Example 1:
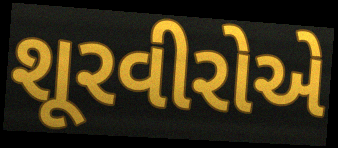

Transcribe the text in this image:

શૂરવીરોએ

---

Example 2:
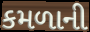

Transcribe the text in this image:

કમળાની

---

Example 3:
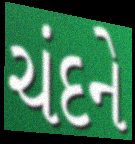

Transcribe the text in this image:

ચંદને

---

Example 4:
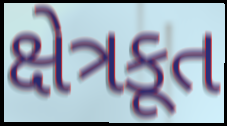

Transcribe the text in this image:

ક્ષેત્રકૂત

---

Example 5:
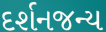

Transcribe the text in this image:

દર્શનજન્ય